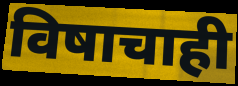
विषाचाही